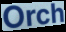
Orch